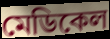
মেডিকেল